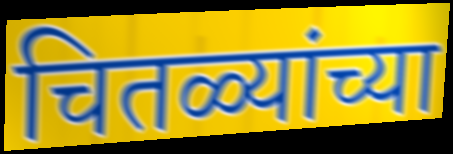
चितळ्यांच्या